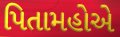
પિતામહોએ